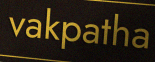
vakpatha